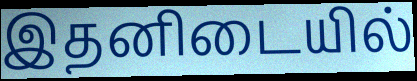
இதனிடையில்